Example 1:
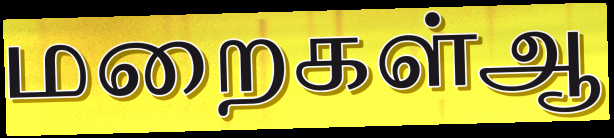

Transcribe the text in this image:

மறைகள்ஆ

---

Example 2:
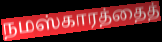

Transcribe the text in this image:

நமஸ்காரத்தைத்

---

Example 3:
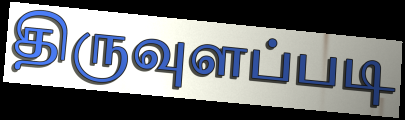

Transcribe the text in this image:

திருவுளப்படி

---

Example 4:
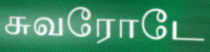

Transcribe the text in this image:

சுவரோடே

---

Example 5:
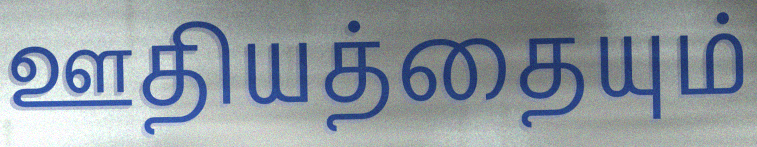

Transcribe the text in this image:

ஊதியத்தையும்